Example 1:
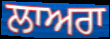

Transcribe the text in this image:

ਲਾਅਰਾ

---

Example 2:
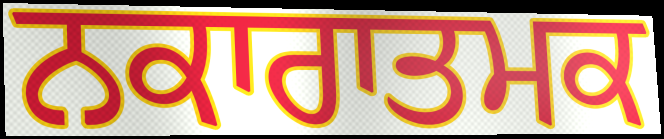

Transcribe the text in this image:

ਨਕਾਰਾਤਮਕ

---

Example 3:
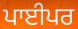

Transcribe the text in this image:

ਪਾਈਪਰ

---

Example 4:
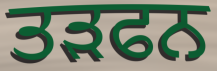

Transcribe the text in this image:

ਤੜਫਨ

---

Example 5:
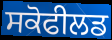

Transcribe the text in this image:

ਸਕੋਫੀਲਡ